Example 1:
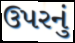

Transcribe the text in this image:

ઉપરનું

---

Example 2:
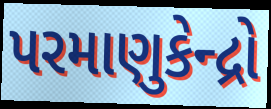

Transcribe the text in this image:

પરમાણુકેન્દ્રો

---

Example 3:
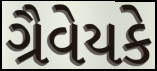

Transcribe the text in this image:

ગ્રૈવેયકે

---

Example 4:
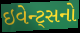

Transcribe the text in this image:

ઇવેન્ટ્સનો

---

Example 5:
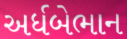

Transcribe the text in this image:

અર્ધબેભાન